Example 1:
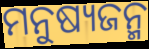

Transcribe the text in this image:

ମନୁଷ୍ୟଜନ୍ମ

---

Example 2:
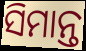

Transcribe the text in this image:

ସିମାନ୍ତ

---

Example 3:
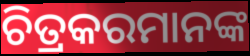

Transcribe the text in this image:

ଚିତ୍ରକରମାନଙ୍କ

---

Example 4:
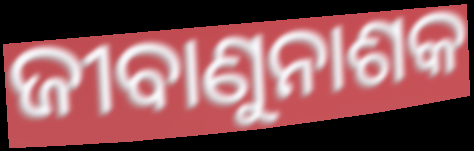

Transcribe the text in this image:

ଜୀବାଣୁନାଶକ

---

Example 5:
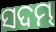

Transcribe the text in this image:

ସଦମ୍ଭ